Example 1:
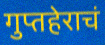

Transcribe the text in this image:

गुप्तहेराचं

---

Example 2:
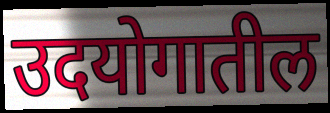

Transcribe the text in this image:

उदयोगातील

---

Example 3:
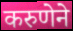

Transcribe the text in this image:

करुणेने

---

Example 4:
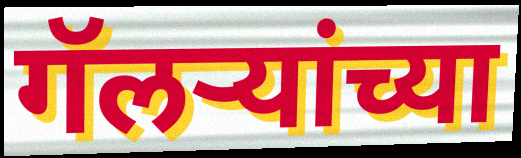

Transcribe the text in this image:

गॅलर्‍यांच्या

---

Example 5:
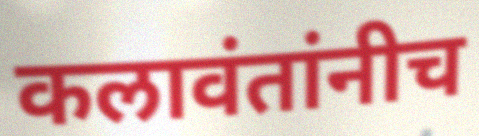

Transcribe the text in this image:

कलावंतांनीच